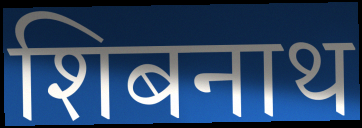
शिबनाथ